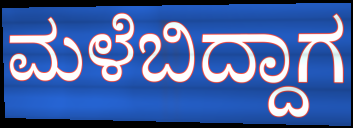
ಮಳೆಬಿದ್ದಾಗ